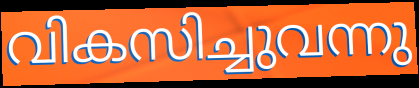
വികസിച്ചുവന്നു